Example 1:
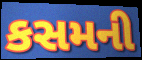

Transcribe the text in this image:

કસમની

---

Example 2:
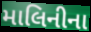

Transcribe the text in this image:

માલિનીના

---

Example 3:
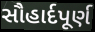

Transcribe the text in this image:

સૌહાર્દપૂર્ણ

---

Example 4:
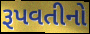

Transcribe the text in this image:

રૂપવતીનો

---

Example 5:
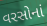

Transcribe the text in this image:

વરસોનાં